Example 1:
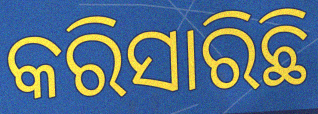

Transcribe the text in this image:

କରିସାରିଛି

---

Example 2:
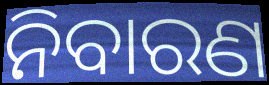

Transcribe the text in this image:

ନିବାରଣ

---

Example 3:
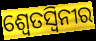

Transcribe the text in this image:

ଶ୍ୱେତସ୍ୱିନୀର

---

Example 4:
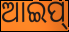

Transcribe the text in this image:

ଆଇପ୍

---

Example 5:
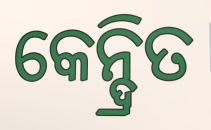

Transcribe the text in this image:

କେନ୍ଦ୍ରିତ